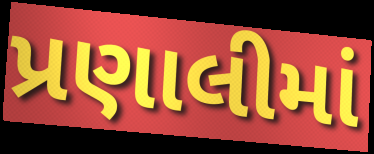
પ્રણાલીમાં